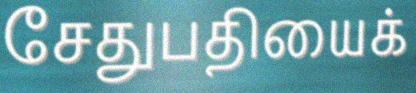
சேதுபதியைக்